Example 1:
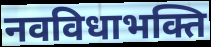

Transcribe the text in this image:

नवविधाभक्ति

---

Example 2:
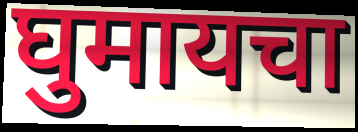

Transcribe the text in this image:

घुमायचा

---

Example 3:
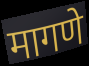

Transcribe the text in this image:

मागणे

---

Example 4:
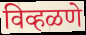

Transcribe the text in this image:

विव्हळणे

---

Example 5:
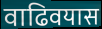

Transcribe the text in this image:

वाढिवयास